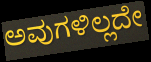
ಅವುಗಳಿಲ್ಲದೇ